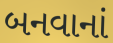
બનવાનાં